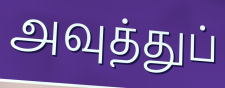
அவுத்துப்